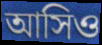
আসিও